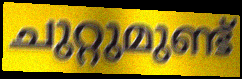
ചുറ്റുമുണ്ട്